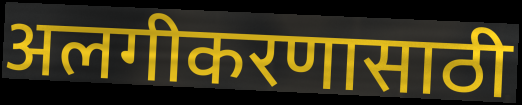
अलगीकरणासाठी